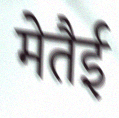
मेतैई